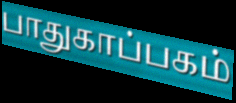
பாதுகாப்பகம்